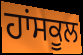
ਹਾਂਸਕੂਲ